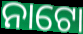
ନାଟୋ